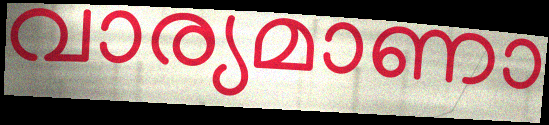
വാര്യമാണാ